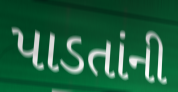
પાડતાંની